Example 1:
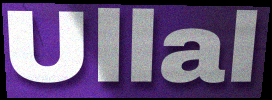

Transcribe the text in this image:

Ullal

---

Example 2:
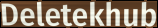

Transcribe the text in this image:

Deletekhub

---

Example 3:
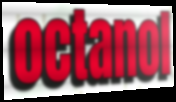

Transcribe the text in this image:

octanol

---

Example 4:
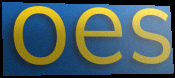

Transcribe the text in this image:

oes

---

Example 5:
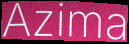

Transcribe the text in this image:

Azima